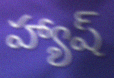
హ్యాష్